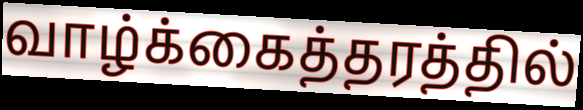
வாழ்க்கைத்தரத்தில்